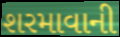
શરમાવાની